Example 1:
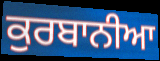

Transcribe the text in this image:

ਕੁਰਬਾਨੀਆ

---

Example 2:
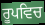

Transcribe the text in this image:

ਰੂਪਵਿਚ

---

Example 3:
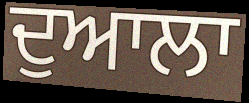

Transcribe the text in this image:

ਦੁਆਲਾ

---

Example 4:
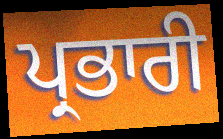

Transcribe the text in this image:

ਪ੍ਰਭਾਰੀ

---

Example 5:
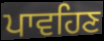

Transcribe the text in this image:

ਪਾਵਹਿਣ